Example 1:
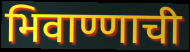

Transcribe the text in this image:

भिवाण्णाची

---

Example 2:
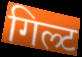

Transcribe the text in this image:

गिल्ट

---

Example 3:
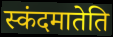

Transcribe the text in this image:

स्कंदमातेति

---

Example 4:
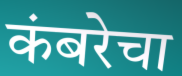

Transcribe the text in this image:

कंबरेचा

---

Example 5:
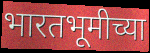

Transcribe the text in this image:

भारतभूमीच्या